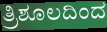
ತ್ರಿಶೂಲದಿಂದ